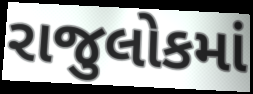
રાજુલોકમાં